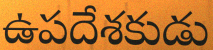
ఉపదేశకుడు